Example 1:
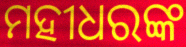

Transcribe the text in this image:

ମହୀଧରଙ୍କ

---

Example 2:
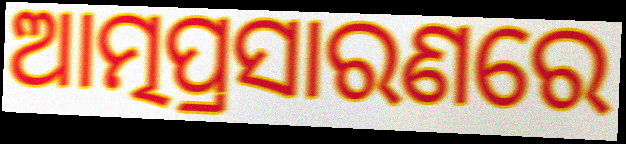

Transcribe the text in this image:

ଆତ୍ମପ୍ରସାରଣରେ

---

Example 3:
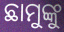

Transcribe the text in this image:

ଛାମୁଙ୍କୁ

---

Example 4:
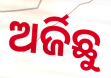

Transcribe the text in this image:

ଅର୍ଜିଛୁ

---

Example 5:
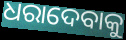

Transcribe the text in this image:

ଧରାଦେବାକୁ